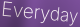
Everyday